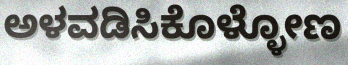
ಅಳವಡಿಸಿಕೊಳ್ಳೋಣ